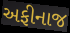
અફીનાજ